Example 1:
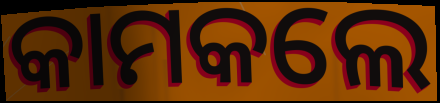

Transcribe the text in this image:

କାମକଲେ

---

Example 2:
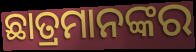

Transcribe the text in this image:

ଛାତ୍ରମାନଙ୍କର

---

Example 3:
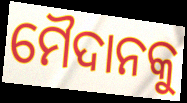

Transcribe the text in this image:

ମୈଦାନକୁ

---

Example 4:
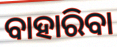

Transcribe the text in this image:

ବାହାରିବା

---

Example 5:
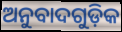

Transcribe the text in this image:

ଅନୁବାଦଗୁଡ଼ିକ